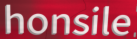
honsile